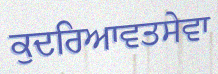
ਕੁਦਰਿਆਵਤਸੇਵਾ